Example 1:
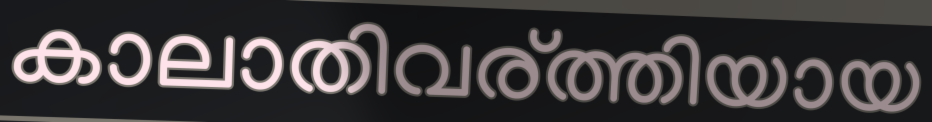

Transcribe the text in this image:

കാലാതിവര്ത്തിയായ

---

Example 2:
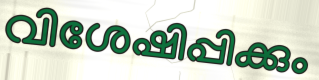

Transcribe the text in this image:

വിശേഷിപ്പിക്കും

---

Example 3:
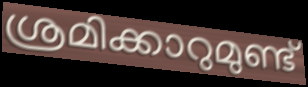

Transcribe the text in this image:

ശ്രമിക്കാറുമുണ്ട്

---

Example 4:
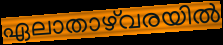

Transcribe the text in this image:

ഏലാതാഴ്‌വരയിൽ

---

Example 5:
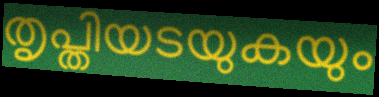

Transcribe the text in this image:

തൃപ്തിയടയുകയും